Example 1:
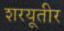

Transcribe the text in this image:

शरयूतीर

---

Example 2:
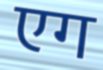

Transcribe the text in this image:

एग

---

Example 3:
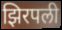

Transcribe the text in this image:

झिरपली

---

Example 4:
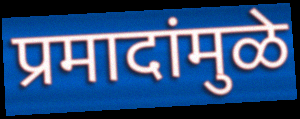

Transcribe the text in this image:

प्रमादांमुळे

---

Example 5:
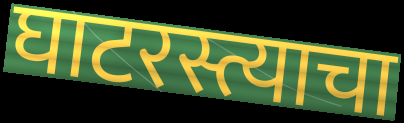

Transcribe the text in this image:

घाटरस्त्याचा